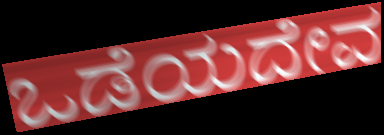
ಒಡೆಯದೇವ